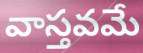
వాస్తవమే